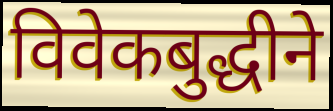
विवेकबुद्धीने